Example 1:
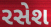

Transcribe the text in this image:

રસેશ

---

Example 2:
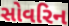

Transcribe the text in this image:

સોવરિન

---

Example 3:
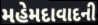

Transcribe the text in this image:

મહેમદાવાદની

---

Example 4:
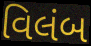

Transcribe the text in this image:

વિલંબ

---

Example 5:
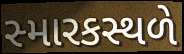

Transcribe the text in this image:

સ્મારકસ્થળે